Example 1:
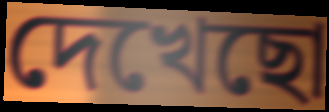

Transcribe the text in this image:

দেখেছো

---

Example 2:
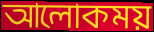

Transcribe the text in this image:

আলোকময়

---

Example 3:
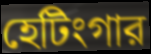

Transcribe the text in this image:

হেটিংগার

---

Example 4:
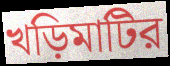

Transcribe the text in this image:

খড়িমাটির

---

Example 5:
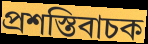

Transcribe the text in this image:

প্রশস্তিবাচক